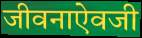
जीवनाऐवजी